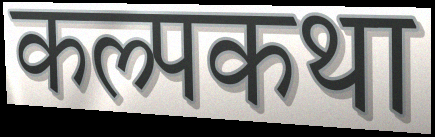
कल्पकथा